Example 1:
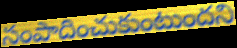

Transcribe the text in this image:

సంపాదించుకుంటుందని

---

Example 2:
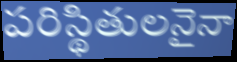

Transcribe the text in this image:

పరిస్థితులనైనా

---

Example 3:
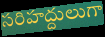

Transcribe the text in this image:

సరిహద్దులుగా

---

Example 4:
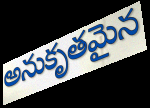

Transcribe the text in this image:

అనుకృతమైన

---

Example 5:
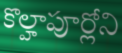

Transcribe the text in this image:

కొల్హాపూర్లోని